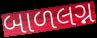
બાળલગ્ન